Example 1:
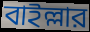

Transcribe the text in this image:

বাইল্লার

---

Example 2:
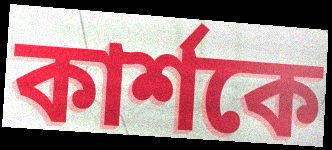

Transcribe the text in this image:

কার্শকে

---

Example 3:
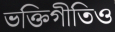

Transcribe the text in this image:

ভক্তিগীতিও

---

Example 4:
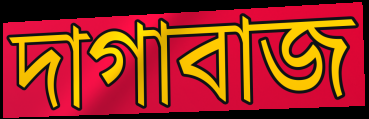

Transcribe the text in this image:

দাগাবাজ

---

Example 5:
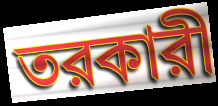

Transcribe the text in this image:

তরকারী